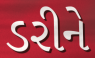
ડરીને